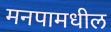
मनपामधील